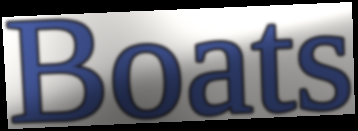
Boats